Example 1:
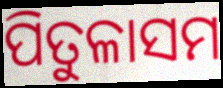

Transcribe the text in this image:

ପିତୁଳାସମ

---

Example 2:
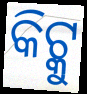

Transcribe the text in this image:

କିଟ୍କୁ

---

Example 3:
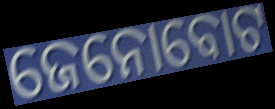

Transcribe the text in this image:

ଜେନୋବୋଟ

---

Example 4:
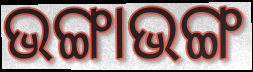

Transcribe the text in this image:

ଭଙ୍ଗାଭଙ୍ଗ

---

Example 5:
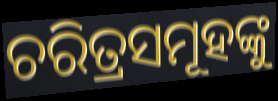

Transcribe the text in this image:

ଚରିତ୍ରସମୂହଙ୍କୁ